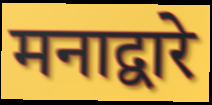
मनाद्वारे